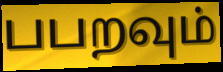
பபறவும்